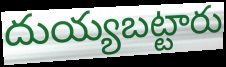
దుయ్యబట్టారు